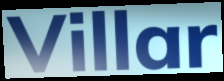
Villar